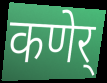
कणेर्